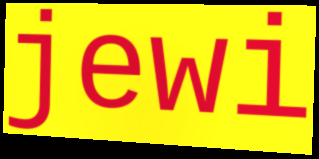
jewi